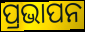
ପ୍ରଭାପନ